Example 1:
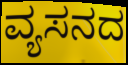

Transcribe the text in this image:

ವ್ಯಸನದ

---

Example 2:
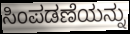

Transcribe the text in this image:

ಸಿಂಪಡಣೆಯನ್ನು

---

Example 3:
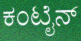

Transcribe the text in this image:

ಕಂಟೈನ್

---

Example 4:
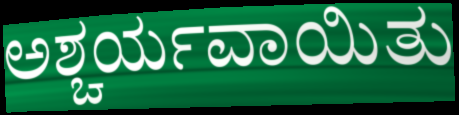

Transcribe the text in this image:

ಅಶ್ಚರ್ಯವಾಯಿತು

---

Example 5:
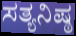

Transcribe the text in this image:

ಸತ್ಯನಿಷ್ಠ